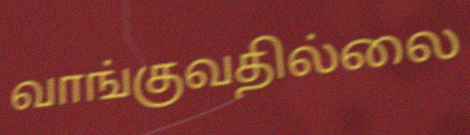
வாங்குவதில்லை